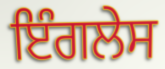
ਇੰਗਲੇਸ